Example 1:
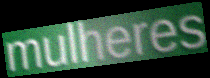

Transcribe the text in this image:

mulheres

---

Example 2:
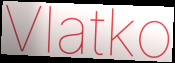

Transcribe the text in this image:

Vlatko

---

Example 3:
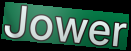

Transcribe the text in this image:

Jower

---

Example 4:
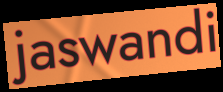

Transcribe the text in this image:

jaswandi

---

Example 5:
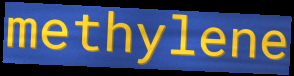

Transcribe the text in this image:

methylene